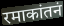
रमाकांतनं